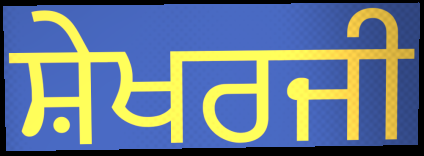
ਸ਼ੇਖਰਜੀ